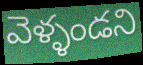
వెళ్ళండని